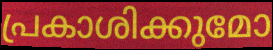
പ്രകാശിക്കുമോ